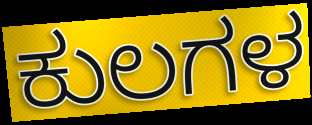
ಕುಲಗಳ